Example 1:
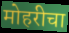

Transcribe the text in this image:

मोहरीचा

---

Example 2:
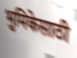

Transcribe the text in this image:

भुमिकेसाठी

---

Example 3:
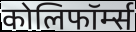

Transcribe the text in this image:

कोलिफॉर्म्स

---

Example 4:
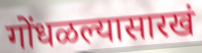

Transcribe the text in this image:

गोंधळल्यासारखं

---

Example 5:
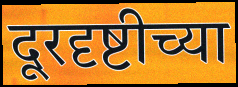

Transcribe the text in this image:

दूरदृष्टीच्या